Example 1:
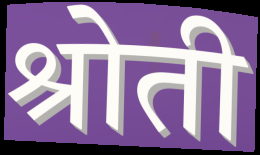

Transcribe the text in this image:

श्रोती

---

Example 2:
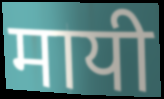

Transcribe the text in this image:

मायी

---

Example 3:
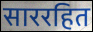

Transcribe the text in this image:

साररहित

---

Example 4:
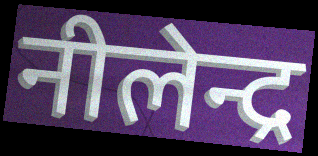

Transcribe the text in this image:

नीलेन्द्र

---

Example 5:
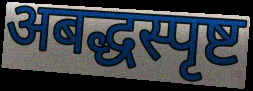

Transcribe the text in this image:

अबद्धस्पृष्ट